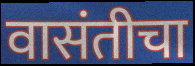
वासंतीचा